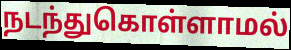
நடந்துகொள்ளாமல்